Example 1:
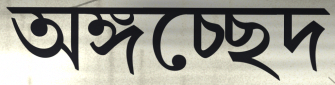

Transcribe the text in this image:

অঙ্গচ্ছেদ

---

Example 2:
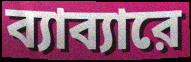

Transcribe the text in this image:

ব্যাব্যারে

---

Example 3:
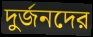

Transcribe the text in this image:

দুর্জনদের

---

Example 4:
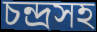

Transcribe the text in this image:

চন্দ্রসহ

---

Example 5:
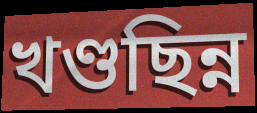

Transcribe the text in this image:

খণ্ডছিন্ন